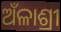
ଅଁଳାଶ୍ରୀ